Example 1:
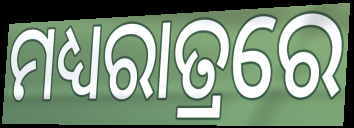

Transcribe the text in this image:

ମଧ୍ୟରାତ୍ରରେ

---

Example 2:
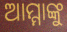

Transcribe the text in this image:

ଆମ୍ମାଙ୍କୁ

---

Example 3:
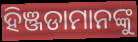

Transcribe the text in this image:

ହିଞ୍ଜଡାମାନଙ୍କୁ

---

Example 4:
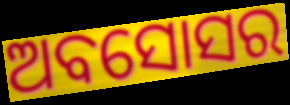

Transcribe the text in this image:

ଅବସୋସର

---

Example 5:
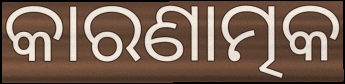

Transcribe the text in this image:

କାରଣାତ୍ମକ